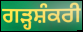
ਗੜ੍ਹਸ਼ੰਕਰੀ